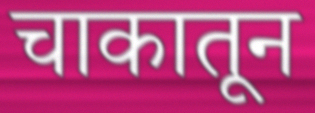
चाकातून